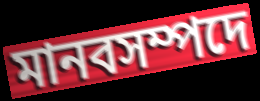
মানবসম্পদে